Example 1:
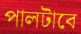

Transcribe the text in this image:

পালটাবে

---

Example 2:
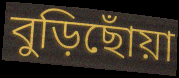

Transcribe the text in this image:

বুড়িছোঁয়া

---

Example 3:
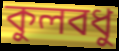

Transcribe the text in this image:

কুলবধু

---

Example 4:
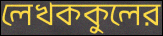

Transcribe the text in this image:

লেখককুলের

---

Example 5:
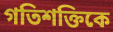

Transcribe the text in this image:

গতিশক্তিকে